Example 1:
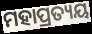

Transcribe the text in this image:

ମହାପ୍ରତ୍ୟୟ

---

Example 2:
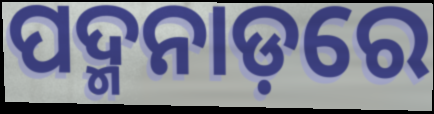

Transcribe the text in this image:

ପଦ୍ମନାଡ଼ରେ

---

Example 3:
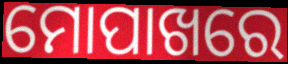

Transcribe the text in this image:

ମୋପାଖରେ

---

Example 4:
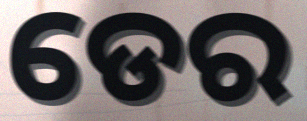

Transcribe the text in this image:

ଡେର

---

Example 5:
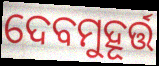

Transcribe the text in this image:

ଦେବମୁହୂର୍ତ୍ତ